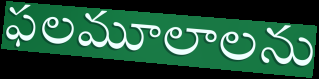
ఫలమూలాలను